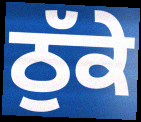
ਠੁੱਕੇ